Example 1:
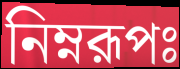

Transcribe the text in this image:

নিম্নরূপঃ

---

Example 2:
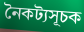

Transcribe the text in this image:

নৈকট্যসূচক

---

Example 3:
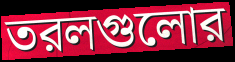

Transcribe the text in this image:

তরলগুলোর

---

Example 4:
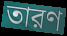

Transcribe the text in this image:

তারণ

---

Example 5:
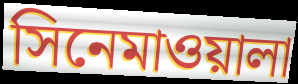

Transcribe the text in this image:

সিনেমাওয়ালা